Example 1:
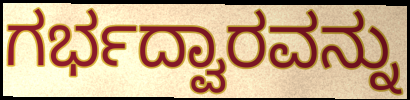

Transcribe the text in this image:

ಗರ್ಭದ್ವಾರವನ್ನು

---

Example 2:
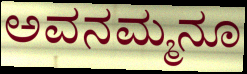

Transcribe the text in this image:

ಅವನಮ್ಮನೂ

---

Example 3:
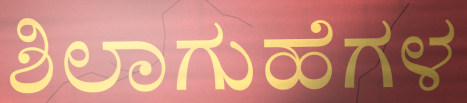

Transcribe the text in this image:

ಶಿಲಾಗುಹೆಗಳ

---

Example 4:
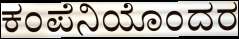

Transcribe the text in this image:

ಕಂಪೆನಿಯೊಂದರ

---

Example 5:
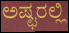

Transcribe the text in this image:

ಅಷ್ಟರಲ್ಲಿ